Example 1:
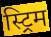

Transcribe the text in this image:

स्ट्रिम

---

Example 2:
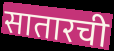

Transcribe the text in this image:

सातारची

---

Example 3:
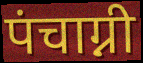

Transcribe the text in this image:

पंचाग्नी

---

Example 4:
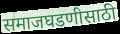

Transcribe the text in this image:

समाजघडणीसाठी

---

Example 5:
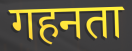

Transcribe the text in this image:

गहनता